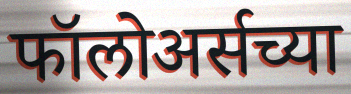
फॉलोअर्सच्या